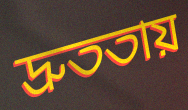
দ্রুততায়